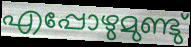
എപ്പോഴുമുണ്ടു്